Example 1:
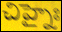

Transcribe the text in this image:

చిహ్నైః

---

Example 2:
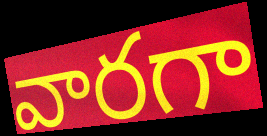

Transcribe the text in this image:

వారగా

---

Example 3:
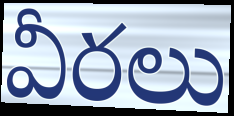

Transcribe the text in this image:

వీరలు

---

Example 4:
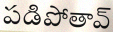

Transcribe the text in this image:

పడిపోతావ్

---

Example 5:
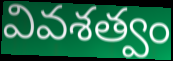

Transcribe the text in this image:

వివశత్వం